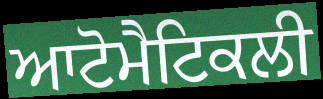
ਆਟੋਮੈਟਿਕਲੀ